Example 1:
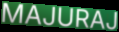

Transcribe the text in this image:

MAJURAJ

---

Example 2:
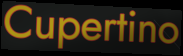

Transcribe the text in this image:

Cupertino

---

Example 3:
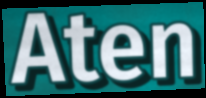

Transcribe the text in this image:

Aten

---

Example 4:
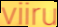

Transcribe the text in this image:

viiru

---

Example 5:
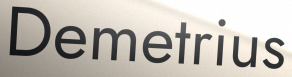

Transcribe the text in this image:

Demetrius